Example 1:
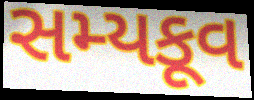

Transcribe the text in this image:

સમ્યકૂવ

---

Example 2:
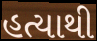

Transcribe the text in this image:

હત્યાથી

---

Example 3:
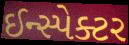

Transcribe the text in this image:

ઈન્સ્પેક્ટર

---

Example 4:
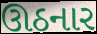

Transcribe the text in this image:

ઊઠનાર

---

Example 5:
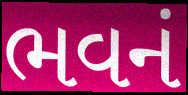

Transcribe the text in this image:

ભવનં